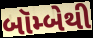
બૉમ્બેથી